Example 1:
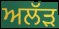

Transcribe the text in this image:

ਅਲੱੜ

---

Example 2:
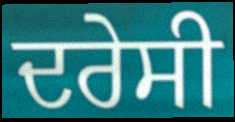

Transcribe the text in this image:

ਦਰੇਸੀ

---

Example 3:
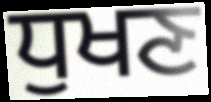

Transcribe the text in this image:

ਧੁਖਣ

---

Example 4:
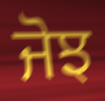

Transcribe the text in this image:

ਜੋਝ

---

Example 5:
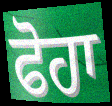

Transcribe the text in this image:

ਫੋਹਾ